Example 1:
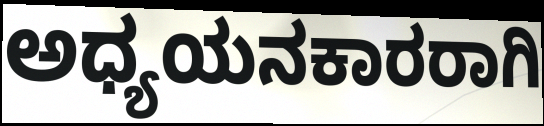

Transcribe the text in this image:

ಅಧ್ಯಯನಕಾರರಾಗಿ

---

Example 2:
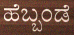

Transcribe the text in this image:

ಹೆಬ್ಬಂಡೆ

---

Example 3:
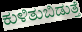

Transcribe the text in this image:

ಕುಳಿತುಬಿಡುತ್ತೆ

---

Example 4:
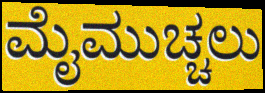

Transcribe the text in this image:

ಮೈಮುಚ್ಚಲು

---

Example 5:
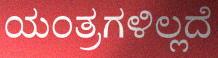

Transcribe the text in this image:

ಯಂತ್ರಗಳಿಲ್ಲದೆ